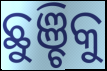
ଛୁଞ୍ଚିକୁ